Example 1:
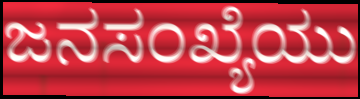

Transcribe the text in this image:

ಜನಸಂಖ್ಯೆಯು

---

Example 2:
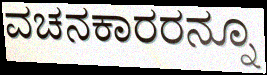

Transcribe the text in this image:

ವಚನಕಾರರನ್ನೂ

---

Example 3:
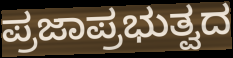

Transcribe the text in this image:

ಪ್ರಜಾಪ್ರಭುತ್ವದ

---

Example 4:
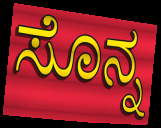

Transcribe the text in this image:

ಸೊನ್ನ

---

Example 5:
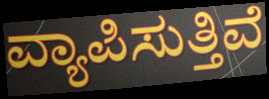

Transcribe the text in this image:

ವ್ಯಾಪಿಸುತ್ತಿವೆ